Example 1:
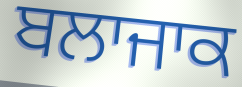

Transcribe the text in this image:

ਬਲਾਜਾਕ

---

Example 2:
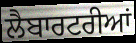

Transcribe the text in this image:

ਲੈਬਾਰਟਰੀਆਂ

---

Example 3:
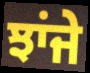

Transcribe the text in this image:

ਝਾਂਜੇ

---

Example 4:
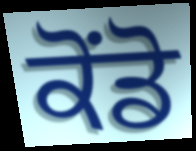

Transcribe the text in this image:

ਕੋਂਡੋ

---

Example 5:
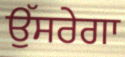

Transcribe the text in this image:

ਉੱਸਰੇਗਾ